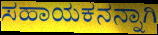
ಸಹಾಯಕನನ್ನಾಗಿ